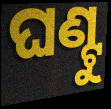
ଘଣ୍ଟୁ